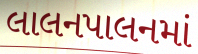
લાલનપાલનમાં